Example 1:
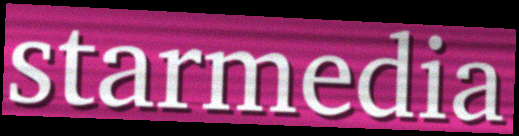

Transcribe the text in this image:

starmedia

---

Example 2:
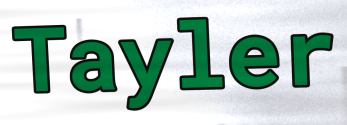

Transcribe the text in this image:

Tayler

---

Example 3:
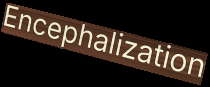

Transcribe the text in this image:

Encephalization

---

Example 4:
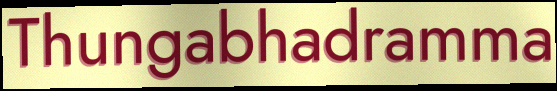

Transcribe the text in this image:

Thungabhadramma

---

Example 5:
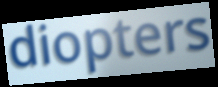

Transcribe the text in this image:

diopters